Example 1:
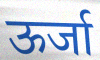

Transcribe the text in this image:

ऊर्जा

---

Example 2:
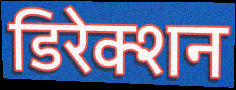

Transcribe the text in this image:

डिरेक्शन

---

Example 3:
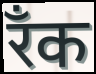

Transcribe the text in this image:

रँक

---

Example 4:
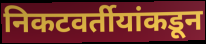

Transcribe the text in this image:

निकटवर्तीयांकडून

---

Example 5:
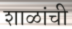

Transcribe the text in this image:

शाळांची